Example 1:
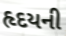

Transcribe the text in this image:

હૃદયની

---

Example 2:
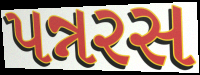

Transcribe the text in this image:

પન્નરસ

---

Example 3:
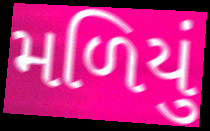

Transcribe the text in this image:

મળિયું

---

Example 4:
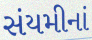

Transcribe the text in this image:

સંયમીનાં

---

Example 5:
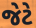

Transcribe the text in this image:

જેટે